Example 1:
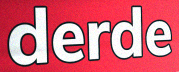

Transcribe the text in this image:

derde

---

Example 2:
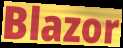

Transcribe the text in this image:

Blazor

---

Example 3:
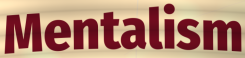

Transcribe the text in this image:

Mentalism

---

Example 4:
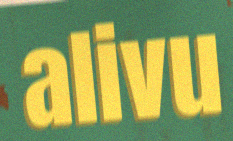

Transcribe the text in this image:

alivu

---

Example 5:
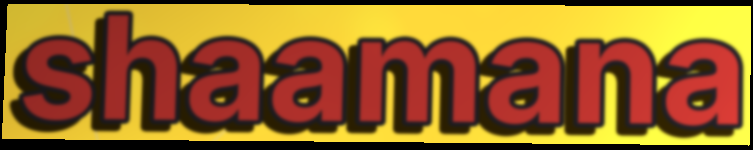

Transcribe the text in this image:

shaamana